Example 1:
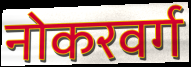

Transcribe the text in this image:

नोकरवर्ग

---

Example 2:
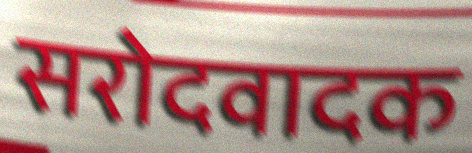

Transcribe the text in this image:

सरोदवादक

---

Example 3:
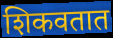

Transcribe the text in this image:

शिकवतात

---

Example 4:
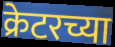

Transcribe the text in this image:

क्रेटरच्या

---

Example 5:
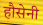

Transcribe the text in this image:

हौसेनी